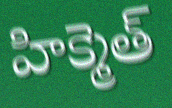
హిక్మెత్